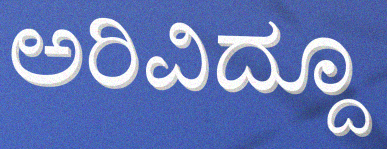
ಅರಿವಿದ್ದೂ